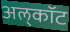
अल्कॉट